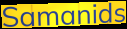
Samanids